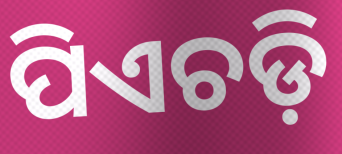
ପିଏଚଡ଼ି